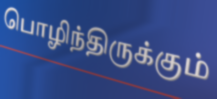
பொழிந்திருக்கும்